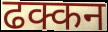
ढक्कन